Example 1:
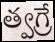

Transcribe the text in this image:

త్వగ్రే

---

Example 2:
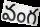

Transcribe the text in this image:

వంగ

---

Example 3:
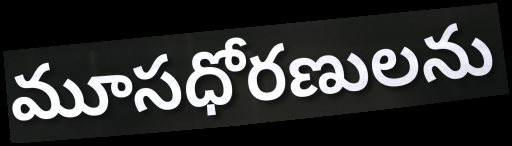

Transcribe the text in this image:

మూసధోరణులను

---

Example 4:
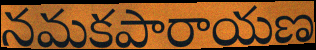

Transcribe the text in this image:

నమకపారాయణ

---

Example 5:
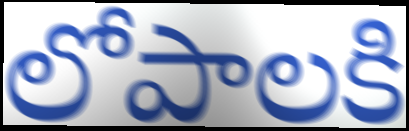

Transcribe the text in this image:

లోపాలకి